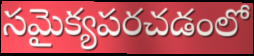
సమైక్యపరచడంలో